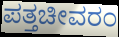
ಪತ್ತಚೀವರಂ